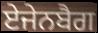
ਏਜੇਨਬੈਗ